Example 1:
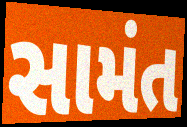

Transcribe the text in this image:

સામંત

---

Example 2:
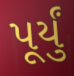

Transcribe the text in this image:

પૂર્યું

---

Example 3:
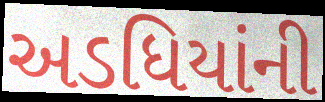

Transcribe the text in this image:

અડધિયાંની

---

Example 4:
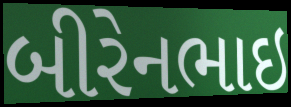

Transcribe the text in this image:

બીરેનભાઇ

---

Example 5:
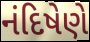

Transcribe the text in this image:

નંદિષેણે